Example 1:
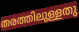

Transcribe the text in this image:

തരത്തിലുള്ളതു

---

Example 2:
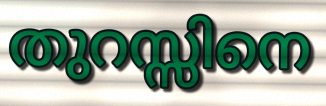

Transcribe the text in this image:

തുറസ്സിനെ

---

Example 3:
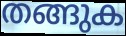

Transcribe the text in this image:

തങ്ങുക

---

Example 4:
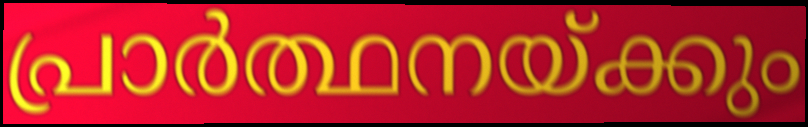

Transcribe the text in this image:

പ്രാർത്ഥനയ്ക്കും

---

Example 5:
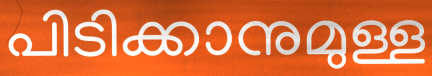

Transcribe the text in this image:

പിടിക്കാനുമുള്ള